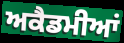
ਅਕੈਡਮੀਆਂ